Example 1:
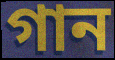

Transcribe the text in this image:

গান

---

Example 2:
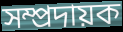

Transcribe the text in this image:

সম্প্ৰদায়ক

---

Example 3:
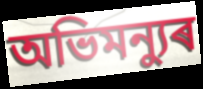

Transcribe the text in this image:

অভিমন্যুৰ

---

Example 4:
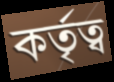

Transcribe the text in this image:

কৰ্তৃত্ব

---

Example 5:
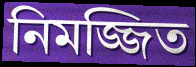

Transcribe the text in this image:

নিমজ্জিত